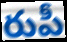
రుపీ